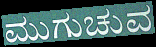
ಮುಗುಚುವ